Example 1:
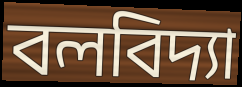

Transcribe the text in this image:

বলবিদ্যা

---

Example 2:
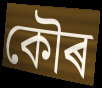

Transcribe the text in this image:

কৌৰ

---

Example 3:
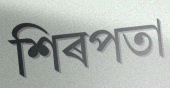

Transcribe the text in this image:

শিৰপতা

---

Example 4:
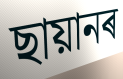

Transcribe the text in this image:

ছায়ানৰ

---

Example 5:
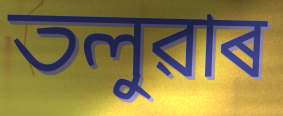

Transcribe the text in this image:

তলুৱাৰ